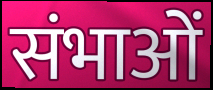
संभाओं